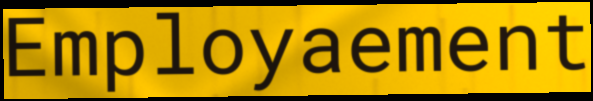
Employaement